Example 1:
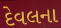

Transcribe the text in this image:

દેવલના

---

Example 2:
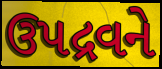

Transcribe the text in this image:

ઉપદ્રવને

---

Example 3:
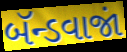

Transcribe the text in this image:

બૅન્ડવાજાં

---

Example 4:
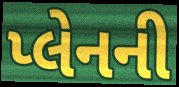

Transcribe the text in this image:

પ્લેનની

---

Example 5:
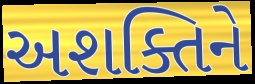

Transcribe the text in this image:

અશક્તિને